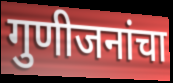
गुणीजनांचा